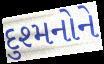
દુશ્મનોને